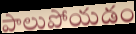
పాలుపోయడం